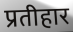
प्रतीहार